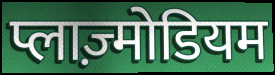
प्लाज़्मोडियम